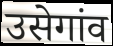
उसेगांव